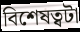
বিশেষত্বটা